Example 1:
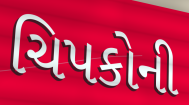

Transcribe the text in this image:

ચિપકોની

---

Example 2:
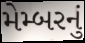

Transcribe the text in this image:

મેમ્બરનું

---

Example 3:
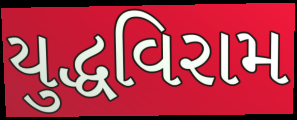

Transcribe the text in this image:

યુદ્ધવિરામ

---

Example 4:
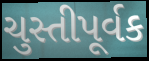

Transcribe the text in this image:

ચુસ્તીપૂર્વક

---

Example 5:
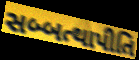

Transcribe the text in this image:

સબ્બત્થાપીતિ